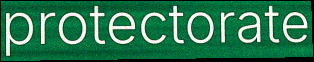
protectorate